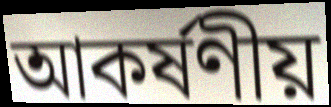
আকর্ষণীয়